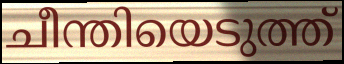
ചീന്തിയെടുത്ത്